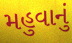
મહુવાનું